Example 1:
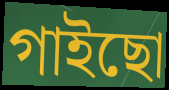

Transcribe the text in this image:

গাইছো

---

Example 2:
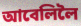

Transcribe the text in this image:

আবেলিলৈ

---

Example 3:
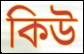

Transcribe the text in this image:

কিউ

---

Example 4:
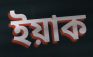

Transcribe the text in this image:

ইয়াক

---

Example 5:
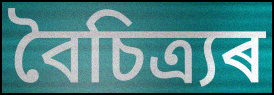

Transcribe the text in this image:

বৈচিত্ৰ্যৰ